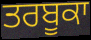
ਤਰਬੂਕਾ